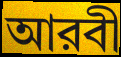
আরবী